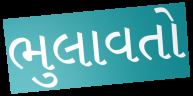
ભુલાવતો